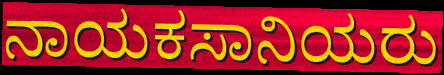
ನಾಯಕಸಾನಿಯರು